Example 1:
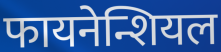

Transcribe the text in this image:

फायनेन्शियल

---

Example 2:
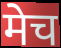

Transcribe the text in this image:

मेच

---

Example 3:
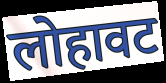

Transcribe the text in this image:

लोहावट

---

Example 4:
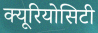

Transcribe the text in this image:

क्यूरियोसिटी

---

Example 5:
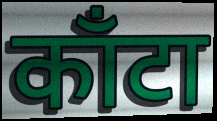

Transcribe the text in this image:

काँटा